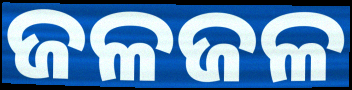
ଜଳଜଳ